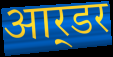
आर्डर